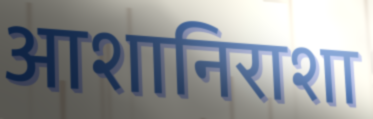
आशानिराशा